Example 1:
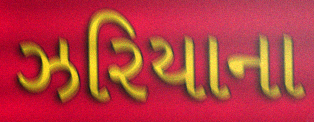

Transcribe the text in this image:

ઝરિયાના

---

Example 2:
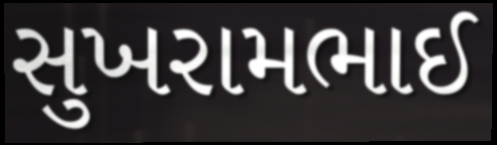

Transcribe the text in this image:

સુખરામભાઈ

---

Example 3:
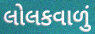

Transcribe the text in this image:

લોલકવાળું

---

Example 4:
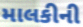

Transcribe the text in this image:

માલકીની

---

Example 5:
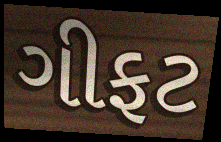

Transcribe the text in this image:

ગીફટ